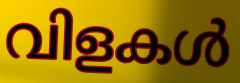
വിളകൾ